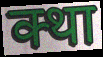
क्था